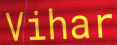
Vihar